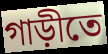
গাড়ীতে